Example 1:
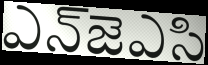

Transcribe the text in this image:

ఎన్‌జెఎసి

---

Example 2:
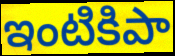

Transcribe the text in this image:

ఇంటికిపా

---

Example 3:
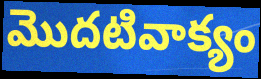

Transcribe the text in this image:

మొదటివాక్యం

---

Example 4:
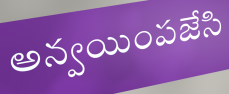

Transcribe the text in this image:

అన్వయింపజేసి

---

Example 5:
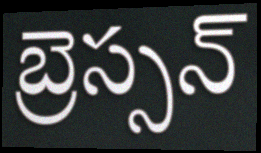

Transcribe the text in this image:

బ్రెస్సన్